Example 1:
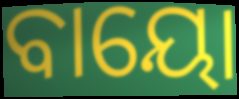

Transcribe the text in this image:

ବାୟୋ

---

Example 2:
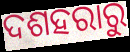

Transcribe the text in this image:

ଦଶହରାରୁ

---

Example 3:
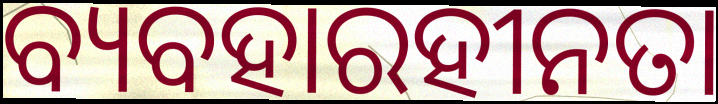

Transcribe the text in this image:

ବ୍ୟବହାରହୀନତା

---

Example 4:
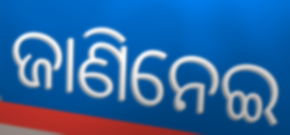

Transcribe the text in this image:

ଜାଣିନେଇ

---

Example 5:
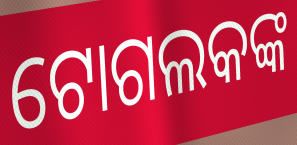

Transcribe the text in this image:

ଟୋଗଲକଙ୍କ